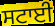
ਸਟਾਈ